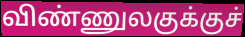
விண்ணுலகுக்குச்